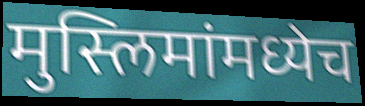
मुस्लिमांमध्येच